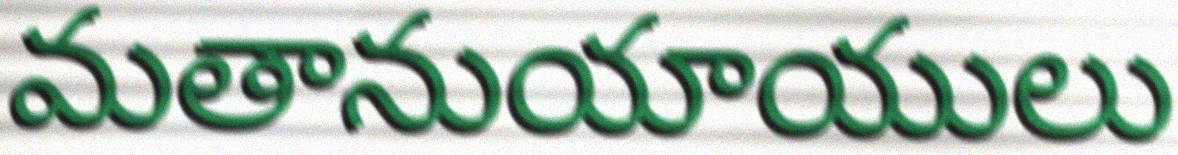
మతానుయాయులు